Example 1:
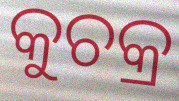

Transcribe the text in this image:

କୁଚକ୍ର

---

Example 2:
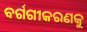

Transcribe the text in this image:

ବର୍ଗଗୀକରଣକୁ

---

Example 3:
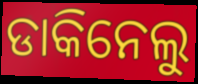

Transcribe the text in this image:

ଡାକିନେଲୁ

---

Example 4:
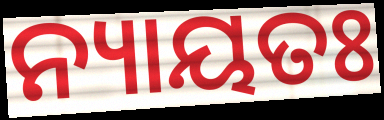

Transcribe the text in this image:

ନ୍ୟାୟତଃ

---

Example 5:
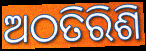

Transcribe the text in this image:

ଅଠତିରିଶି